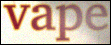
vape